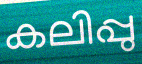
കലിപ്പു